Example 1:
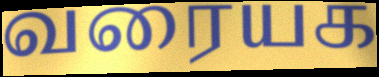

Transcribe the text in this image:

வரையக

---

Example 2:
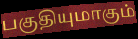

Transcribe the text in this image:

பகுதியுமாகும்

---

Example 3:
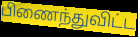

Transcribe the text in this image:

பிணைந்துவிட்ட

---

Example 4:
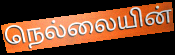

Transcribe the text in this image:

நெல்லையின்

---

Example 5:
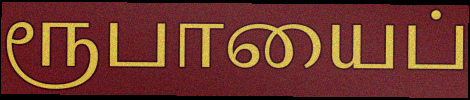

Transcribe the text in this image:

ரூபாயைப்